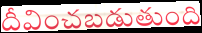
దీవించబడుతుంది